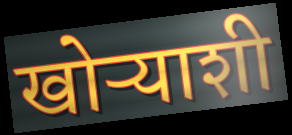
खोऱ्याशी